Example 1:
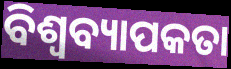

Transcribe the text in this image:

ବିଶ୍ୱବ୍ୟାପକତା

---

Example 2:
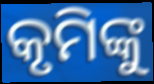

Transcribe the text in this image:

କୃମିଙ୍କୁ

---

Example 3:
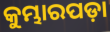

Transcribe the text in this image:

କୁମ୍ଭାରପଡ଼ା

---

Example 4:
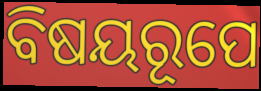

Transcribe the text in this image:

ବିଷୟରୂପେ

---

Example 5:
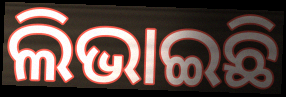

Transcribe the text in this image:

ଲିଭାଇଛି